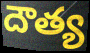
దౌత్య